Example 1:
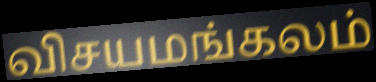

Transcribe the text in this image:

விசயமங்கலம்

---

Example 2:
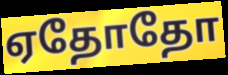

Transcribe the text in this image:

ஏதோதோ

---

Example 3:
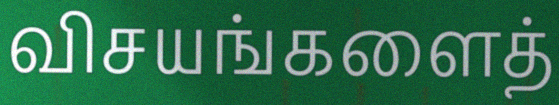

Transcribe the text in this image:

விசயங்களைத்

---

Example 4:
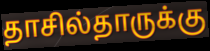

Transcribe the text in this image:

தாசில்தாருக்கு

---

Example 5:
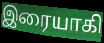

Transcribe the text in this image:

இரையாகி